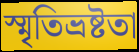
স্মৃতিভ্রষ্টতা